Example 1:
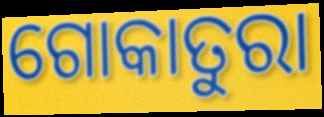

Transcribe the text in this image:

ଗୋକାତୁରା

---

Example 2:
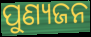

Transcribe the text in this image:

ପୁଣ୍ୟଜନ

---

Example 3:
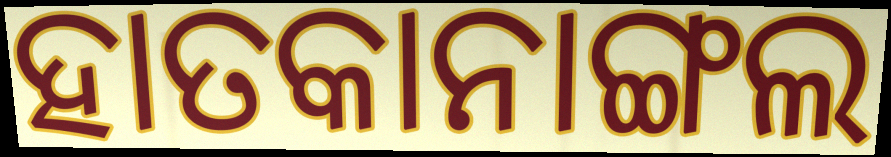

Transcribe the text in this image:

ହାତକାନାଙ୍ଗଲ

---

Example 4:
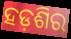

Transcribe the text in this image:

ହଡ଼ଶିର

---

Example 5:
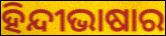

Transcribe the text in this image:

ହିନ୍ଦୀଭାଷାର